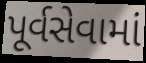
પૂર્વસેવામાં